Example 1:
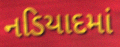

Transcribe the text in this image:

નડિયાદમાં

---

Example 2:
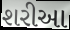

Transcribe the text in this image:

શરીઆ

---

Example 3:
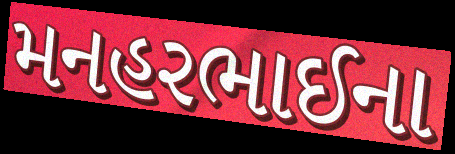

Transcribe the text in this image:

મનહરભાઈના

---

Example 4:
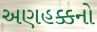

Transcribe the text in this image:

અણહક્કનો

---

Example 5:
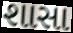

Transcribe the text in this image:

શાસા